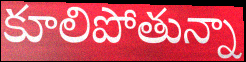
కూలిపోతున్నా